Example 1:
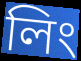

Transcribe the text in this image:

লিং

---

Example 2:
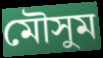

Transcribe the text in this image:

মৌসুম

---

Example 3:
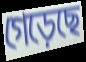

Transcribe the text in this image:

গেড়েছে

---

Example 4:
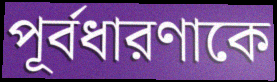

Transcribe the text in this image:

পূর্বধারণাকে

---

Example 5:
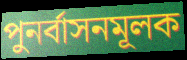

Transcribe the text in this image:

পুনর্বাসনমূলক